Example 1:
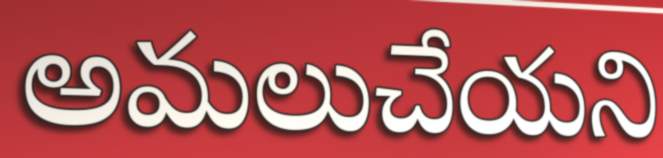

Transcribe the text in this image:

అమలుచేయని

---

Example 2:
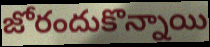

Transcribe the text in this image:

జోరందుకొన్నాయి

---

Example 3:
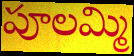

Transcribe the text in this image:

పూలమ్మి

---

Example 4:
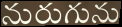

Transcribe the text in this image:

నురుగును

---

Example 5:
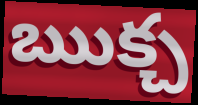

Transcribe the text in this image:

ఋక్చ